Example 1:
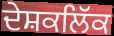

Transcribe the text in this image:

ਦੇਸ਼ਕਲਿੱਕ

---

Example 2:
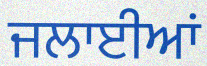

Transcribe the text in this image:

ਜਲਾਈਆਂ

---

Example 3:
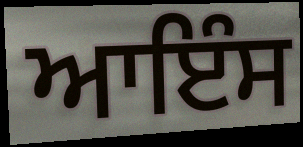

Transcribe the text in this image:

ਆਇੰਸ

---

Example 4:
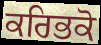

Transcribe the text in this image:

ਕਰਿਭਕੋ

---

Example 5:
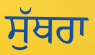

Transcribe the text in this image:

ਸੁੱਥਰਾ